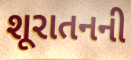
શૂરાતનની